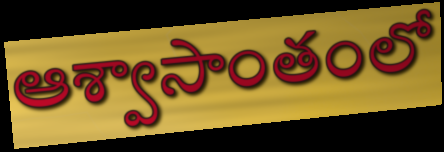
ఆశ్వాసాంతంలో